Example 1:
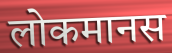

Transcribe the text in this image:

लोकमानस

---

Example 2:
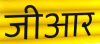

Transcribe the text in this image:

जीआर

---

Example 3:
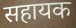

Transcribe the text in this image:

सहायक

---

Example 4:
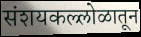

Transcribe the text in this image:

संशयकल्लोळातून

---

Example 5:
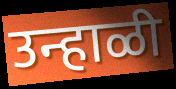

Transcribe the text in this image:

उन्हाळी